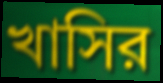
খাসির